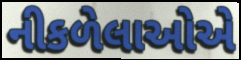
નીકળેલાઓએ